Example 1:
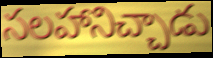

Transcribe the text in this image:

సలహానిచ్చాడు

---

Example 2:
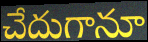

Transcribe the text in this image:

చేదుగానూ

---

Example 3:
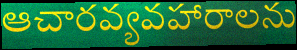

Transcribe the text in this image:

ఆచారవ్యవహారాలను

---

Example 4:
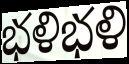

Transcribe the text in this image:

భళిభళి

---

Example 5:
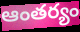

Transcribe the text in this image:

ఆంతర్యం